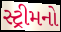
સ્ટ્રીમનો